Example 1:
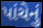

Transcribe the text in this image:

પાંચેનું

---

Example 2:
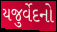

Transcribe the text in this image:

યજુર્વેદનો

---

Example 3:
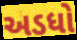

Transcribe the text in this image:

અડધો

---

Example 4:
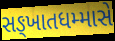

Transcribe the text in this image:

સઙ્ખાતધમ્માસે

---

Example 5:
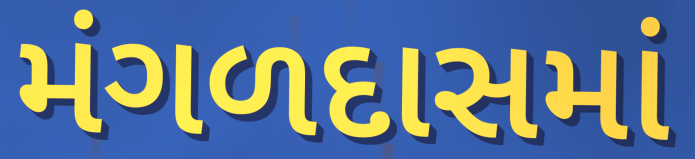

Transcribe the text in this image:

મંગળદાસમાં